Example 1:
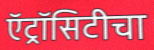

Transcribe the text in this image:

ऍट्रॉसिटीचा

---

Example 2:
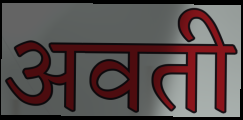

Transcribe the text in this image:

अवती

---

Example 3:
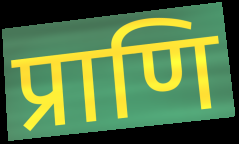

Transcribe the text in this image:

प्राणि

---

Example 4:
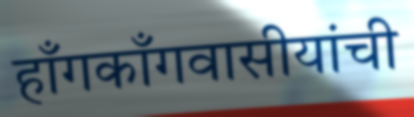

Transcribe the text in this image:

हाँगकाँगवासीयांची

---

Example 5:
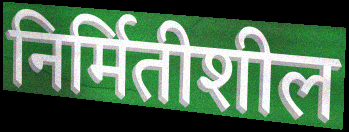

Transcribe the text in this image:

निर्मितीशील